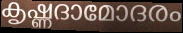
കൃഷ്ണദാമോദരം